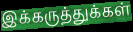
இக்கருத்துக்கள்